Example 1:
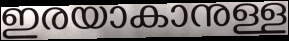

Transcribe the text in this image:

ഇരയാകാനുള്ള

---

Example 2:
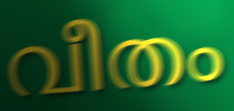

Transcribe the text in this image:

വീതം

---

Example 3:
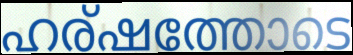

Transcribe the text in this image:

ഹര്ഷത്തോടെ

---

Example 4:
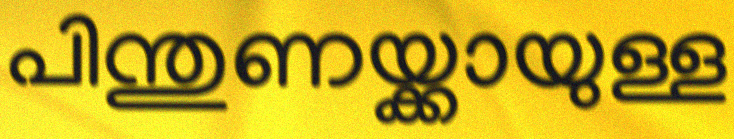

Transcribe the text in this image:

പിന്തുണയ്ക്കായുള്ള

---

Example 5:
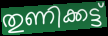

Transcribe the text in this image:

തുണിക്കട്ട്